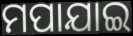
ମପାଯାଇ